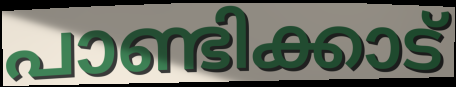
പാണ്ടിക്കാട്